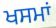
ਖਸਮਾਂ